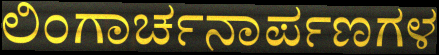
ಲಿಂಗಾರ್ಚನಾರ್ಪಣಗಳ